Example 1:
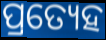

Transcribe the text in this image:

ପ୍ରତ୍ୟେହ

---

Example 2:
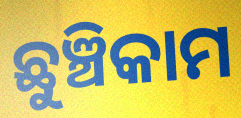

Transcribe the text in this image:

ଛୁଞ୍ଚିକାମ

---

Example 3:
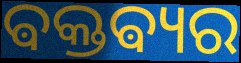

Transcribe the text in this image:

ଵକ୍ତଵ୍ୟର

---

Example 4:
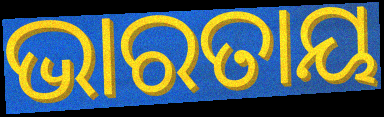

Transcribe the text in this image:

ଭାରତାୟ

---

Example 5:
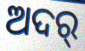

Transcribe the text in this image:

ଅଦର୍